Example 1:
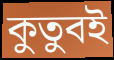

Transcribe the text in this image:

কুতুবই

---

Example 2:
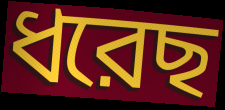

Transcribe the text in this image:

ধরেছ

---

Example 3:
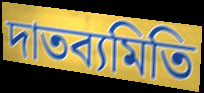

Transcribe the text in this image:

দাতব্যমিতি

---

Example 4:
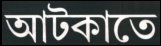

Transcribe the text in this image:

আটকাতে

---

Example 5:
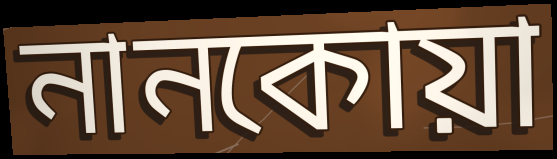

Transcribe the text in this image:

নানকোয়া